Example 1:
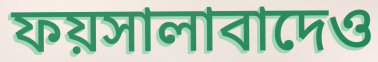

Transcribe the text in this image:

ফয়সালাবাদেও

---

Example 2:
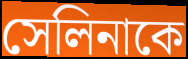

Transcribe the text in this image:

সেলিনাকে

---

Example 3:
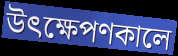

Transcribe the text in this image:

উৎক্ষেপণকালে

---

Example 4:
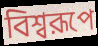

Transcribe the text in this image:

বিশ্বরূপে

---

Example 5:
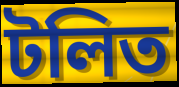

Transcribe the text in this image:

টলিত